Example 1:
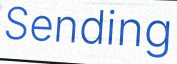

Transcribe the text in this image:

Sending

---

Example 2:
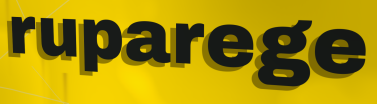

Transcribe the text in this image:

ruparege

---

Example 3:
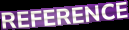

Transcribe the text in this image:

REFERENCE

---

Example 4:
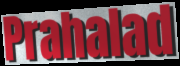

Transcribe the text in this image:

Prahalad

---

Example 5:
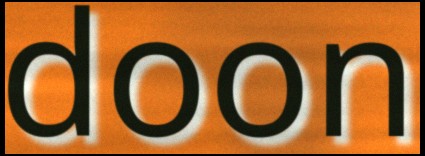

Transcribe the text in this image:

doon